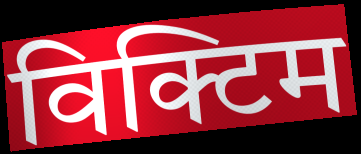
विक्टिम